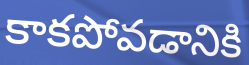
కాకపోవడానికి